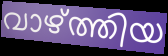
വാഴ്ത്തിയ